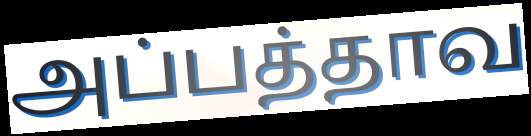
அப்பத்தாவ